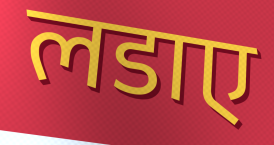
लडाए